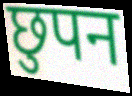
छुपन